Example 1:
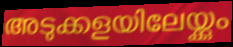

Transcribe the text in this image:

അടുക്കളയിലേയ്ക്കും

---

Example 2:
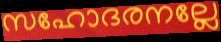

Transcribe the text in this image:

സഹോദരനല്ലേ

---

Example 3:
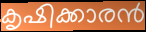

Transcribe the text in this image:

കൃഷിക്കാരൻ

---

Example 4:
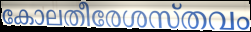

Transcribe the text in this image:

കോലതീരേശസ്തവം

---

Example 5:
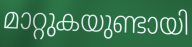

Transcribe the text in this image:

മാറ്റുകയുണ്ടായി